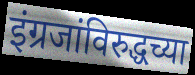
इंग्रजांविरुद्धच्या